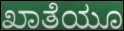
ಖಾತೆಯೂ